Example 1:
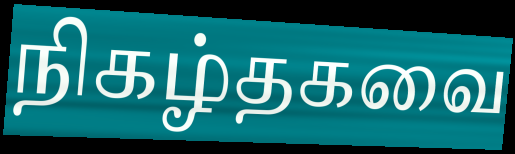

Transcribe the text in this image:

நிகழ்தகவை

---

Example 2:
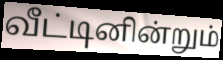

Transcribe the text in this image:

வீட்டினின்றும்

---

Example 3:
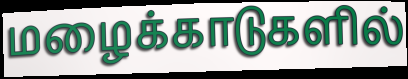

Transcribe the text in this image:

மழைக்காடுகளில்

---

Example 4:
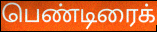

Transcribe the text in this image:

பெண்டிரைக்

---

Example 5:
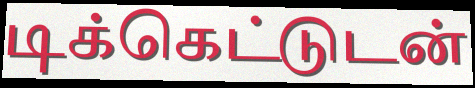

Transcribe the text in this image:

டிக்கெட்டுடன்